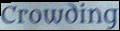
Crowding